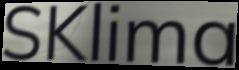
SKlima